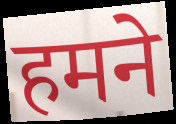
हमने